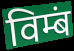
विम्बं